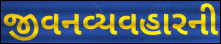
જીવનવ્યવહારની